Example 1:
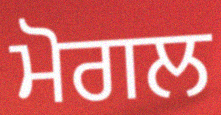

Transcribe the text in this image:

ਮੋਗਲ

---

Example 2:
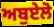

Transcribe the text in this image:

ਅਬੁਏਲੋ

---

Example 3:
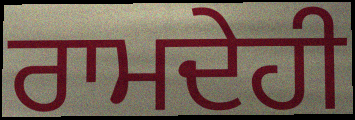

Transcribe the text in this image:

ਰਾਮਦੇਹੀ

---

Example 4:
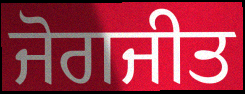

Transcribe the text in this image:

ਜੋਗਜੀਤ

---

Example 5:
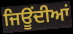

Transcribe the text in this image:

ਜਿਊਂਦੀਆਂ